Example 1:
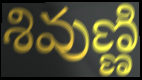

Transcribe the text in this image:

శివుణ్ణి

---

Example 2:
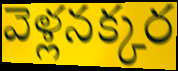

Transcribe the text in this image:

వెళ్లనక్కర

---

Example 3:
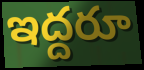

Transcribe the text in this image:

ఇద్దరూ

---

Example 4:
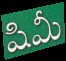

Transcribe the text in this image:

షిమీ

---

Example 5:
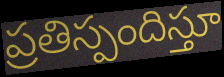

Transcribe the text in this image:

ప్రతిస్పందిస్తూ